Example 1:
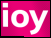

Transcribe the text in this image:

ioy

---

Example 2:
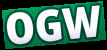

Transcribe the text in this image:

OGW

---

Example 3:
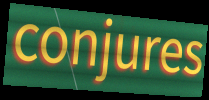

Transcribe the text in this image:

conjures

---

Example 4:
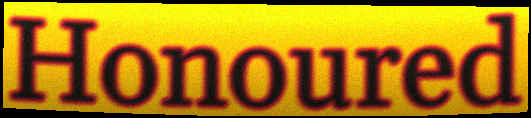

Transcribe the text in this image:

Honoured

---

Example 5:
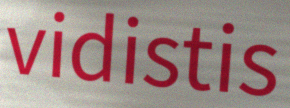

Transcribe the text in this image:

vidistis